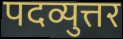
पदव्युत्तर